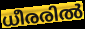
ധീരരിൽ